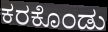
ಕರಕೊಂಡು